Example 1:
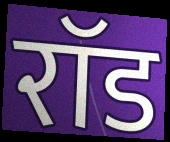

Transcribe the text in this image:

रॉड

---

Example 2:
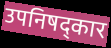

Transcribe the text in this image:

उपनिषद्कार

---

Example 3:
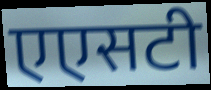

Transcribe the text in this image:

एएसटी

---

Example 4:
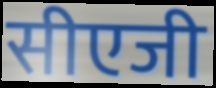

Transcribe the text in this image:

सीएजी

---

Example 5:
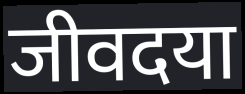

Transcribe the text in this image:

जीवदया